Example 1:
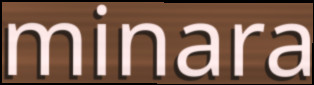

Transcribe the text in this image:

minara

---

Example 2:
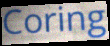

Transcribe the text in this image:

Coring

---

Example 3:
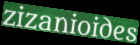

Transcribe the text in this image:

zizanioides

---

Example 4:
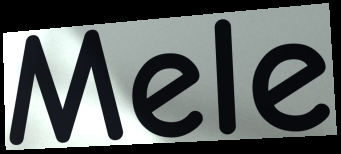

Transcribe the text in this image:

Mele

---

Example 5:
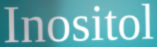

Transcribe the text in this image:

Inositol